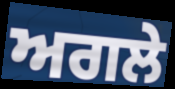
ਅਗਲੇ